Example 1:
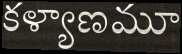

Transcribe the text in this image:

కళ్యాణమూ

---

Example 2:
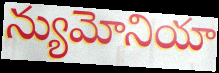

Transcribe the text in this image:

న్యుమోనియా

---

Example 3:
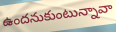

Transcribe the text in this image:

ఉందనుకుంటున్నావా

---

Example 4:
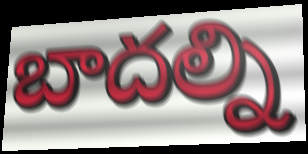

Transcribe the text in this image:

బాదల్ని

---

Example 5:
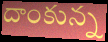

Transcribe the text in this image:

దాంకున్న